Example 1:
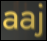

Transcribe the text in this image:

aaj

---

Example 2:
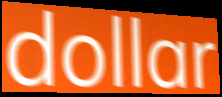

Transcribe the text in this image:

dollar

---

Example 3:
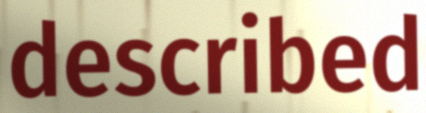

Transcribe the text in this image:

described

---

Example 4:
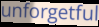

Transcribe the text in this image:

unforgetful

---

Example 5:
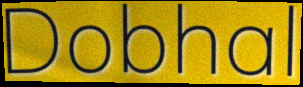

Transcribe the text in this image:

Dobhal